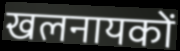
खलनायकों